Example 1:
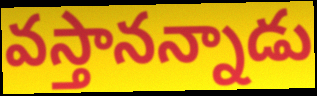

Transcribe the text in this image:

వస్తానన్నాడు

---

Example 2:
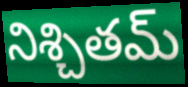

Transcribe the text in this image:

నిశ్చితమ్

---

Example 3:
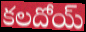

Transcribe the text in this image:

కలదోయ్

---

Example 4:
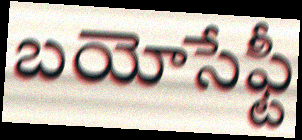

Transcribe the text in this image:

బయోసేఫ్టీ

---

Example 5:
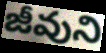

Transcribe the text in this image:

జీవుని